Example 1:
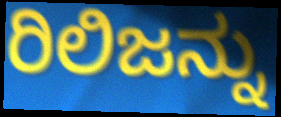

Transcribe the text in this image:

ರಿಲಿಜನ್ನು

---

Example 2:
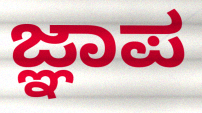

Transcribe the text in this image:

ಜ್ಞಾಪ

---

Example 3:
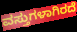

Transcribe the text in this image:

ವಸ್ತುಗಳಾಗಿರದೆ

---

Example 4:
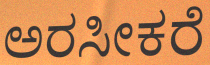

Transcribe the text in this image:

ಅರಸೀಕರೆ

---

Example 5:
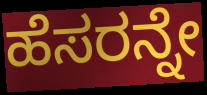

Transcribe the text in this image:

ಹೆಸರನ್ನೇ